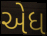
એધ